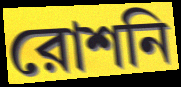
রোশনি